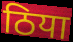
ठिया